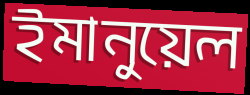
ইমানুয়েল